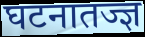
घटनातज्ज्ञ